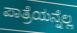
ಪಾತ್ರೆಯನ್ನೆಲ್ಲ